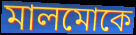
মালমোকে